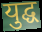
युद्घ